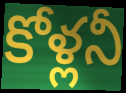
కోళ్లనీ